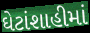
ઘેટાંશાહીમાં